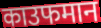
काउफमान